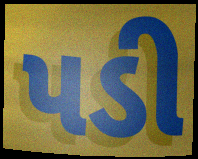
પડી